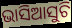
ଭାସିଆସୁଚି